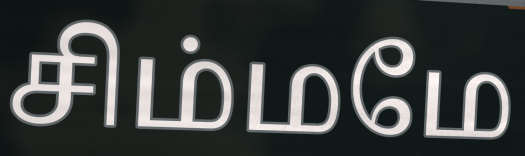
சிம்மமே